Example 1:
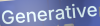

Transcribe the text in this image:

Generative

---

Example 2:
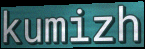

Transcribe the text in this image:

kumizh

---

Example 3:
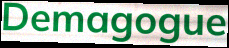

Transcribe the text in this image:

Demagogue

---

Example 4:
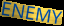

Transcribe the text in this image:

ENEMY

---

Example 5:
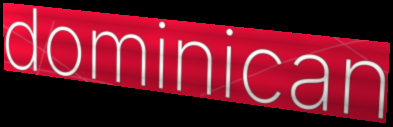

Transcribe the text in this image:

dominican